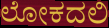
ಲೋಕದಲಿ